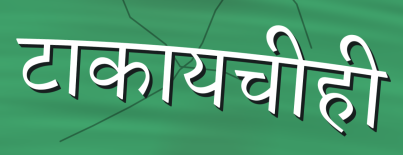
टाकायचीही